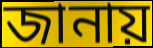
জানায়